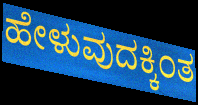
ಹೇಳುವುದಕ್ಕಿಂತ